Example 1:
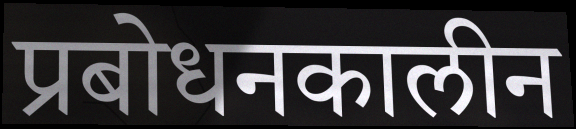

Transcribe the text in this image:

प्रबोधनकालीन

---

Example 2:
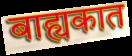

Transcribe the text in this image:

बाह्यकात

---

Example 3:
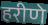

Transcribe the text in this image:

हरीणे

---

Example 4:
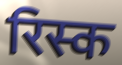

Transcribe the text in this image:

रिस्क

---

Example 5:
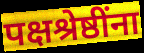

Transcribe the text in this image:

पक्षश्रेष्ठींना